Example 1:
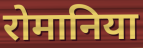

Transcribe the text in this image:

रोमानिया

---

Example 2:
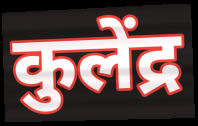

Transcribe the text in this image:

कुलेंद्र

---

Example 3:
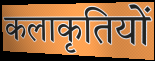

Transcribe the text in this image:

कलाकृतियों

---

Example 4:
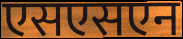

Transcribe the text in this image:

एसएसएन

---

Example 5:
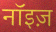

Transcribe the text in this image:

नॉइज़